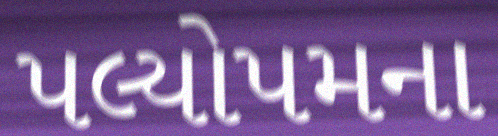
પલ્યોપમના